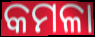
କମଳା